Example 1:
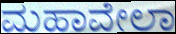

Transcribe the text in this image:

ಮಹಾವೇಲಾ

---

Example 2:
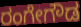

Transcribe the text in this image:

ರಂಗೇಗೌಡ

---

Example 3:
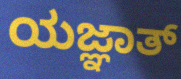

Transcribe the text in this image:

ಯಜ್ಞಾತ್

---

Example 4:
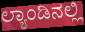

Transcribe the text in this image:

ಲ್ಯಾಂಡಿನಲ್ಲಿ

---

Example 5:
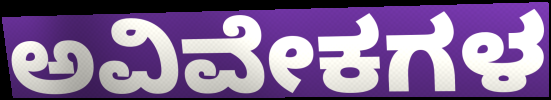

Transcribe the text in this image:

ಅವಿವೇಕಗಳ